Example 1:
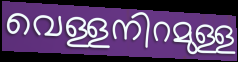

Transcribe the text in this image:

വെള്ളനിറമുള്ള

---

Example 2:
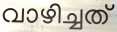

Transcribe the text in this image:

വാഴിച്ചത്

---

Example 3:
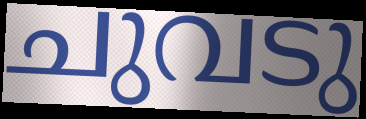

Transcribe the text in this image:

ചുവടു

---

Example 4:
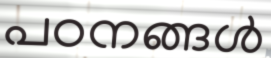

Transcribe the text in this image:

പഠനങ്ങൾ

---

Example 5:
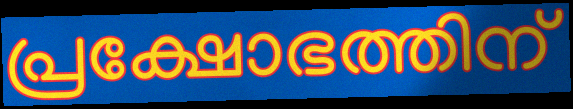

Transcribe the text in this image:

പ്രക്ഷോഭത്തിന്